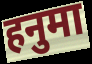
हनुमा